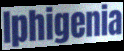
Iphigenia